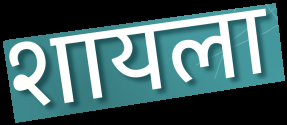
शायला